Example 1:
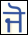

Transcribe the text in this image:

ਜੋ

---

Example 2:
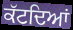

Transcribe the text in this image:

ਕੱਟਦਿਆਂ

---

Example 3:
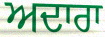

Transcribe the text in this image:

ਅਦਾਰਾ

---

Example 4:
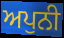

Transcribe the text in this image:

ਅਪੁਨੀ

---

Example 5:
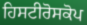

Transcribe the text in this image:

ਹਿਸਟੀਰੋਸਕੋਪ